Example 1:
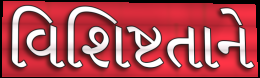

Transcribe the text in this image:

વિશિષ્ટતાને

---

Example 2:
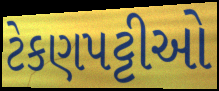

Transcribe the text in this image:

ટેકણપટ્ટીઓ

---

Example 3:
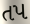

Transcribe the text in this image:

તપ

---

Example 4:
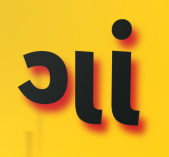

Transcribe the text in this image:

ગાં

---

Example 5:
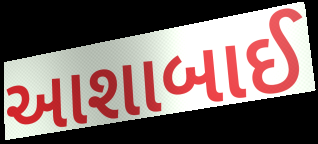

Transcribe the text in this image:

આશાબાઈ